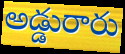
అడ్డురారు